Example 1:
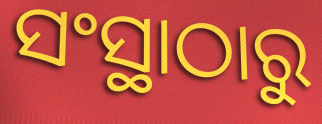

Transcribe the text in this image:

ସଂସ୍ଥାଠାରୁ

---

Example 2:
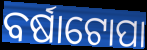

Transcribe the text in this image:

ବର୍ଷାଟୋପା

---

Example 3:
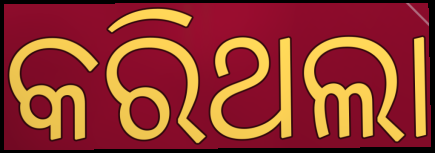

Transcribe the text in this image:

କରିଥଲା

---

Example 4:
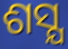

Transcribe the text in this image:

ଶସ୍ଯ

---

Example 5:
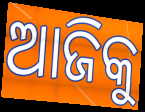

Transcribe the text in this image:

ଆଜିକୁ